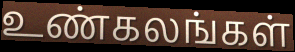
உண்கலங்கள்